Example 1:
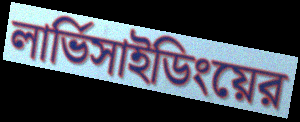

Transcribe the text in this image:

লার্ভিসাইডিংয়ের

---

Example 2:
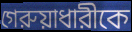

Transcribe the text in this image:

গেরুয়াধারীকে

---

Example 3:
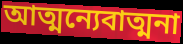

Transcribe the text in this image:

আত্মন্যেবাত্মনা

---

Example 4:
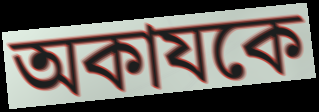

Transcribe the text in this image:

অকাযকে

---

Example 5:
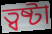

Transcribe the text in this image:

ত্বষ্টা